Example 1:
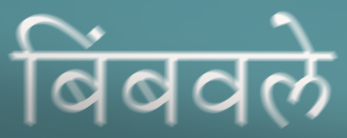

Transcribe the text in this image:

बिंबवले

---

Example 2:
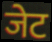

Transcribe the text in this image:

जेट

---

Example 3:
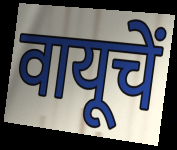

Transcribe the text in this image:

वायूचें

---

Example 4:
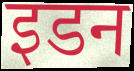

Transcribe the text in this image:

इडन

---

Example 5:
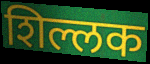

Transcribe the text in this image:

शिल्लक